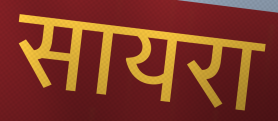
सायरा